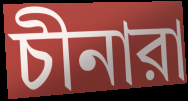
চীনারা